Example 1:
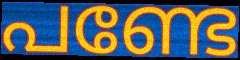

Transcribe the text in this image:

പണ്ടേ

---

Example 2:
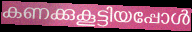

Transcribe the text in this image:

കണക്കുകൂട്ടിയപ്പോൾ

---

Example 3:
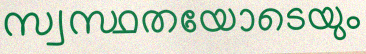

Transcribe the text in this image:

സ്വസ്ഥതയോടെയും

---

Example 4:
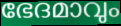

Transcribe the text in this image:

ഭേദമാവും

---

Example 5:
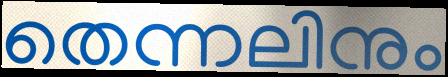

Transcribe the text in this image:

തെന്നലിനും